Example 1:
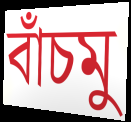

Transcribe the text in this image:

বাঁচমু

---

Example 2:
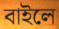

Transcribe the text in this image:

বাইলে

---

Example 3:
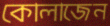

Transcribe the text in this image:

কোলাজেন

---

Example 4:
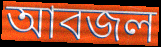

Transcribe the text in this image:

আবজল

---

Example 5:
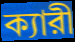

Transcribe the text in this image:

ক্যারী